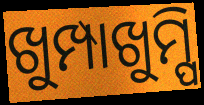
ଖୁମ୍ପାଖୁମ୍ପି